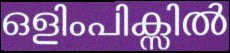
ഒളിംപിക്സിൽ